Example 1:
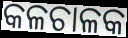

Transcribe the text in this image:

କଳଚାଳକ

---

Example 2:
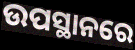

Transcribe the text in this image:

ଉପସ୍ଥାନରେ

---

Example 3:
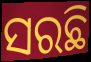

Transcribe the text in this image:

ସରଛି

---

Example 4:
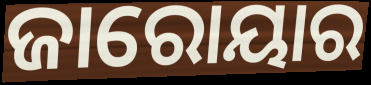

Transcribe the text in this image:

ଜାରୋୟାର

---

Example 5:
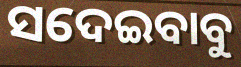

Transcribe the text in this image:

ସଦେଇବାବୁ